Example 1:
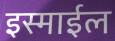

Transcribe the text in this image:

इस्माईल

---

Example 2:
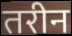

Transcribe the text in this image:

तरीन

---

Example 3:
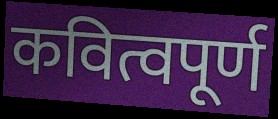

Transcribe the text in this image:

कवित्वपूर्ण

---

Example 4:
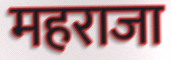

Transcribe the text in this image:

महराजा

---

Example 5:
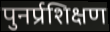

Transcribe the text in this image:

पुनर्प्रशिक्षण